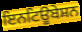
ਇਨਟਿਊਬੇਸ਼ਨ